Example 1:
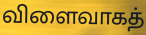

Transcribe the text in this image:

விளைவாகத்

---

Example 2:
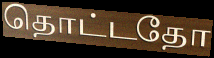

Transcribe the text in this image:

தொட்டதோ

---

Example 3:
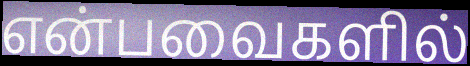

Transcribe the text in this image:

என்பவைகளில்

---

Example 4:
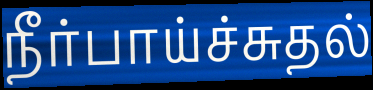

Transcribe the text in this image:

நீர்பாய்ச்சுதல்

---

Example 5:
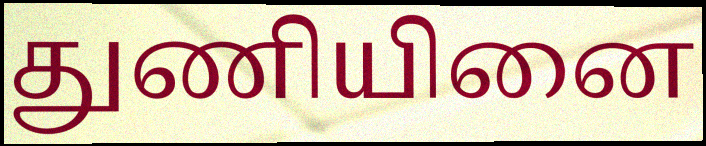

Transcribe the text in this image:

துணியினை